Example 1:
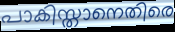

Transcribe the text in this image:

പാകിസ്താനെതിരെ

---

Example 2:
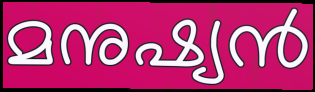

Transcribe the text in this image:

മനുഷ്യൻ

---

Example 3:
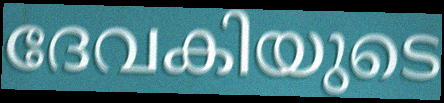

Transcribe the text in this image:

ദേവകിയുടെ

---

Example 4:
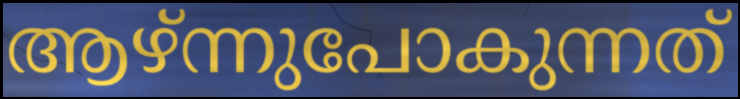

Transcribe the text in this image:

ആഴ്ന്നുപോകുന്നത്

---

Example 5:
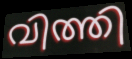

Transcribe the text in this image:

വിത്തി